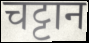
चट्टान